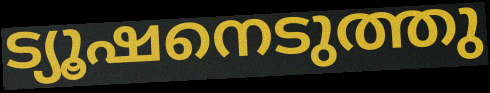
ട്യൂഷനെടുത്തു